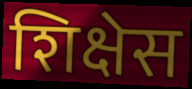
शिक्षेस